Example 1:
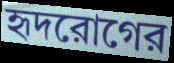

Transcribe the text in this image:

হৃদরোগের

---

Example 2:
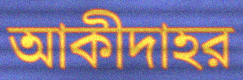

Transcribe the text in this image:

আকীদাহর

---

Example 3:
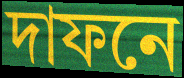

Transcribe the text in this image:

দাফনে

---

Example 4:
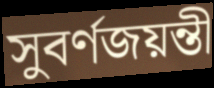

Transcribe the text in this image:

সুবর্ণজয়ন্তী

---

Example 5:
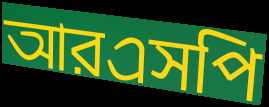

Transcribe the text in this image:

আরএসপি